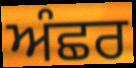
ਅੰਛਰ